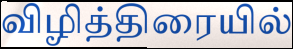
விழித்திரையில்